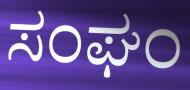
ಸಂಘಂ